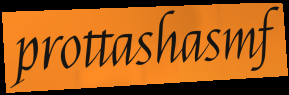
prottashasmf